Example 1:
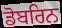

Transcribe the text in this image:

ਡੋਬਰਿਨ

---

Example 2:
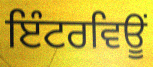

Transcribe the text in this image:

ਇੰਟਰਵਿਊਂ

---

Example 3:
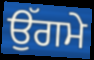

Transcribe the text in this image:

ਉੱਗਮੇ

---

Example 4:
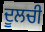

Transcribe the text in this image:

ਦੂਲਚੀ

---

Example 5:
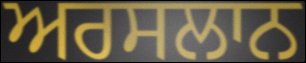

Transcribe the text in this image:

ਅਰਸਲਾਨ